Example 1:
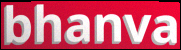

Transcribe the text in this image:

bhanva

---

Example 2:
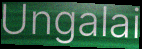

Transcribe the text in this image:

Ungalai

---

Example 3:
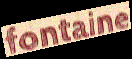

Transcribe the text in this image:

fontaine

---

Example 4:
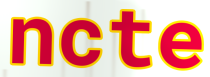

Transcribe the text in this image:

ncte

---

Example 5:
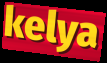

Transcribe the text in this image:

kelya